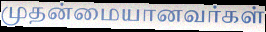
முதன்மையானவர்கள்